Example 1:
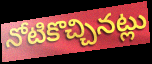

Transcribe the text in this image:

నోటికొచ్చినట్లు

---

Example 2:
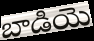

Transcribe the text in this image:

బాడియె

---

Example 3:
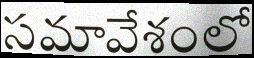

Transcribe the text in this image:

సమావేశంలో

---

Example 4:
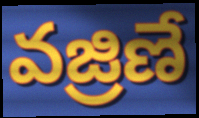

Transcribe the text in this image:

వజ్రిణే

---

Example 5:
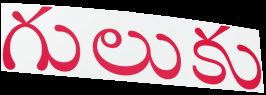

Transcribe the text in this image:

గులుకు